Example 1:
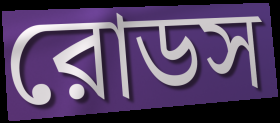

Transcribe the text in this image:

রোডস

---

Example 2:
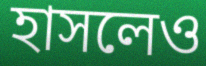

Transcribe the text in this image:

হাসলেও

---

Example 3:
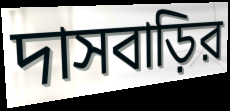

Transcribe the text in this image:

দাসবাড়ির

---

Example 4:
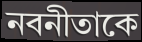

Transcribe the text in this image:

নবনীতাকে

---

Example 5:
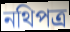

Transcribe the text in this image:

নথিপত্র